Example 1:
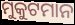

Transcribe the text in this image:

ମୁକୁଟମାନ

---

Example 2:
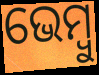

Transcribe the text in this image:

ଭେମ୍ବୁ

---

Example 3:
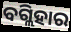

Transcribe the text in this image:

ବଗ୍ଲିହାର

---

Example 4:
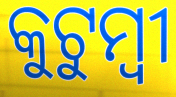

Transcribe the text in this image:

କୁଟୁମ୍ବୀ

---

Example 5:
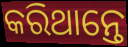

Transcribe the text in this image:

କରିଥାନ୍ତେ